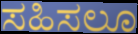
ಸಹಿಸಲೂ